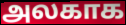
அலகாக